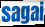
sagai